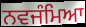
ਨਵਜੰਮਿਆ